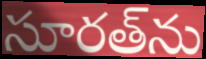
సూరత్‌ను